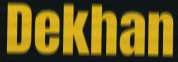
Dekhan